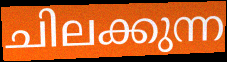
ചിലക്കുന്ന